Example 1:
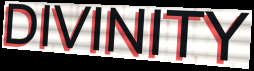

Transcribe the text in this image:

DIVINITY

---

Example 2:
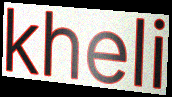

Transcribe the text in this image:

kheli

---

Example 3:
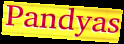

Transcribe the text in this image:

Pandyas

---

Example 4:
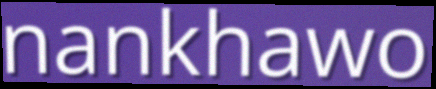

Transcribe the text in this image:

nankhawo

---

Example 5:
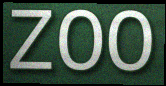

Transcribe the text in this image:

ZOO